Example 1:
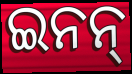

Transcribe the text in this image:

ଇନନ୍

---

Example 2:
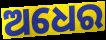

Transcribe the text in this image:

ଅଧେର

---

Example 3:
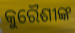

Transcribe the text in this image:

କୁରୈଶୀଙ୍କ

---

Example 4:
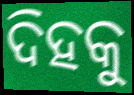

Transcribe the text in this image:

ଦିହକୁ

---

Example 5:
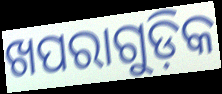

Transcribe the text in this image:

ଖପରାଗୁଡ଼ିକ